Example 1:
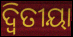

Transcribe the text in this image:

ଦ୍ୱିତୀୟା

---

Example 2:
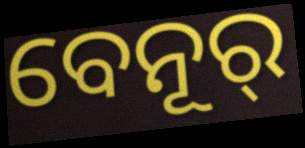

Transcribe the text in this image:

ବେନୂର୍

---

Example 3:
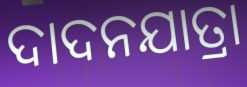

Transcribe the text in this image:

ଦାଦନଯାତ୍ରା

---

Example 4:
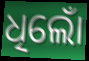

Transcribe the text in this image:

ଧିଲୋଁ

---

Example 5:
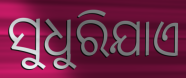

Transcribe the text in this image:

ସୁଧୁରିଯାଏ